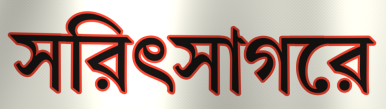
সরিৎসাগরে